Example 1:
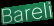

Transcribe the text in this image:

Bareli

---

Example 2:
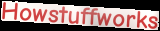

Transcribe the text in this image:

Howstuffworks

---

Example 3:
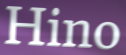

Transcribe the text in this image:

Hino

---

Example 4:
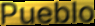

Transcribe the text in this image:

Pueblo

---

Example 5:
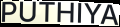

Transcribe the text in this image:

PUTHIYA